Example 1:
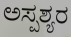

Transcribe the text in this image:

ಅಸ್ಪಶ್ಯರ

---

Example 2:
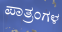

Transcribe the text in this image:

ಪಾತ್ರಂಗಳ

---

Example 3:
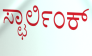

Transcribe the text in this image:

ಸ್ಟಾರ್ಲಿಂಕ್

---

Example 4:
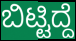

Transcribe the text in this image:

ಬಿಟ್ಟಿದ್ದೆ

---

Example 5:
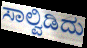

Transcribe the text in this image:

ಸಾಲ್ವಿಡಿದು